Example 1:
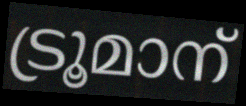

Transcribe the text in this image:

ട്രൂമാന്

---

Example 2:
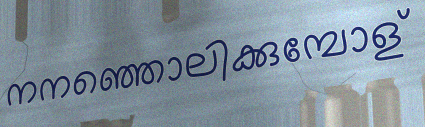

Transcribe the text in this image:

നനഞ്ഞൊലിക്കുമ്പോള്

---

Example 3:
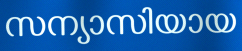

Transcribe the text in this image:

സന്യാസിയായ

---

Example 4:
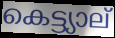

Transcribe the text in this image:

കെട്ട്യാല്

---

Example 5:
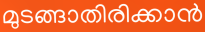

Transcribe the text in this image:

മുടങ്ങാതിരിക്കാൻ